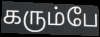
கரும்பே